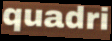
quadri